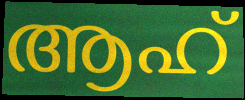
ആഹ്